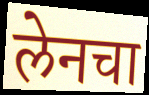
लेनचा